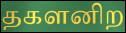
தகளனிற